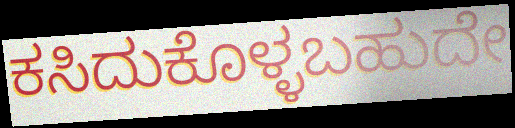
ಕಸಿದುಕೊಳ್ಳಬಹುದೇ